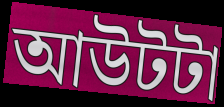
আউটটা